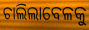
ଚାଲିଲାବେଳକୁ